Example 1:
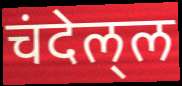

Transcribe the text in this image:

चंदेल्ल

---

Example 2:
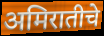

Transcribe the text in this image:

अमिरातीचे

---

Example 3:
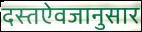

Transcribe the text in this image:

दस्तऐवजानुसार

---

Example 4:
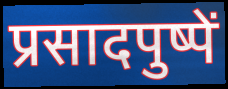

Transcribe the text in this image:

प्रसादपुष्पें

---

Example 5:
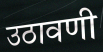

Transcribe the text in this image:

उठावणी